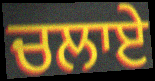
ਚਲਾਏ